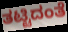
ತಟ್ಟಿದಂತೆ